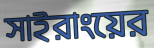
সাইরাংয়ের